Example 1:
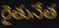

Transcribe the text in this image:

రైతునేత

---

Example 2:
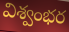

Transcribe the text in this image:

విశ్వంభర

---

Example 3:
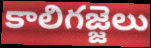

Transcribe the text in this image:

కాలిగజ్జెలు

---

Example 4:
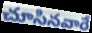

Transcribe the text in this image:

చూసినవారే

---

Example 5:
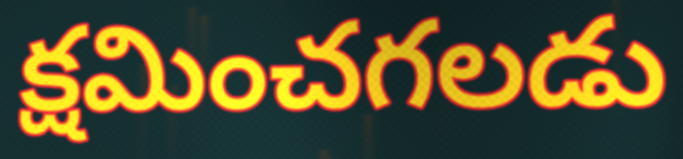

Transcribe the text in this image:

క్షమించగలడు